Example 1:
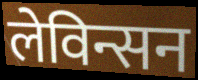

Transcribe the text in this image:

लेविन्सन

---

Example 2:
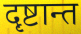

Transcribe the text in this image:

दृष्टान्त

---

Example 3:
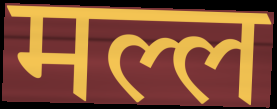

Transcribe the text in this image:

मल्ल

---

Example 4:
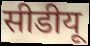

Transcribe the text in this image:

सीडीयू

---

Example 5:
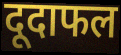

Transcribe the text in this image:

दूदाफल